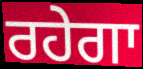
ਰਹੇਗਾ